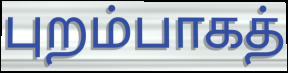
புறம்பாகத்